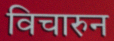
विचारुन